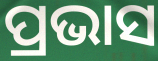
ପ୍ରଭାସ